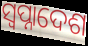
ସ୍ବପ୍ନାଦେଶ